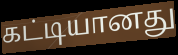
கட்டியானது